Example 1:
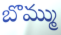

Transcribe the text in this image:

బొమ్ము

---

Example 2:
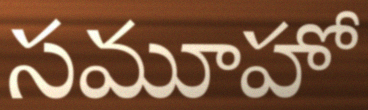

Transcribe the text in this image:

సమూహో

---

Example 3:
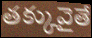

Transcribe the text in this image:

తక్కువైతే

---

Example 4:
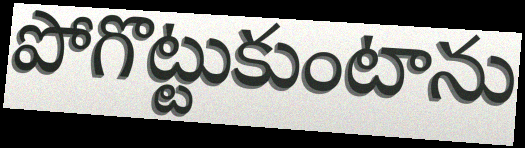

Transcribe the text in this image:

పోగొట్టుకుంటాను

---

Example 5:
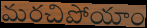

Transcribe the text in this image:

మరచిపోయాం